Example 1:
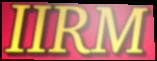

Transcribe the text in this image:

IIRM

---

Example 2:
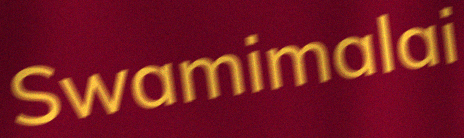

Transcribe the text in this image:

Swamimalai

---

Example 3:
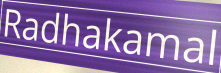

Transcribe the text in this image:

Radhakamal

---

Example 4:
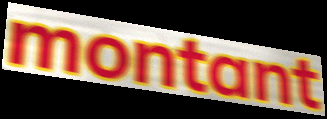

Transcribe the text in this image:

montant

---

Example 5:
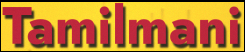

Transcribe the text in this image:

Tamilmani